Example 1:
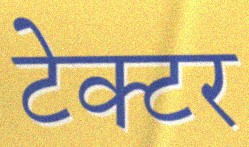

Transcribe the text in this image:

टेक्टर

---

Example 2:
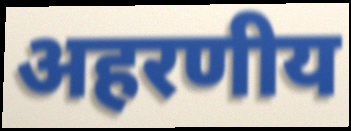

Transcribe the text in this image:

अहरणीय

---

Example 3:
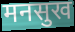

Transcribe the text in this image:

मनसुख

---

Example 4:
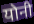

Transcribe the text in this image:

योनी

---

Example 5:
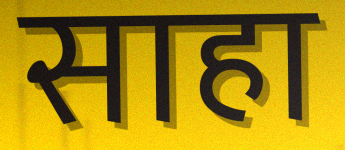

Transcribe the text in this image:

साहा